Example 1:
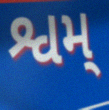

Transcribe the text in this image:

શ્વમ્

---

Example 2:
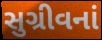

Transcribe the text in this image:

સુગ્રીવનાં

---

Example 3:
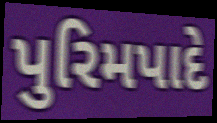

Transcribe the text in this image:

પુરિમપાદે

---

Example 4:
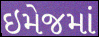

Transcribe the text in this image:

ઇમેજમાં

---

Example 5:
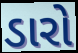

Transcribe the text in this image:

ડારો